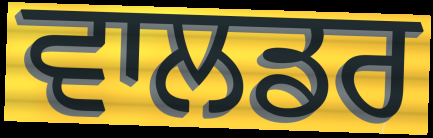
ਵਾਲਡਰ